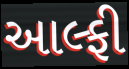
આલ્ફી